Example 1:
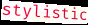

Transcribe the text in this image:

stylistic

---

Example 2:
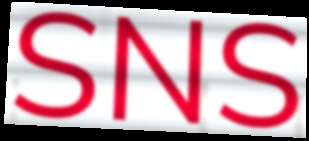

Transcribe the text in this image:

SNS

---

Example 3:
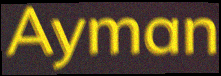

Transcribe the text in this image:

Ayman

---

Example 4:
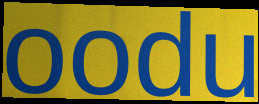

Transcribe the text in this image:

oodu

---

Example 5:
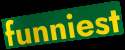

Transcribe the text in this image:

funniest